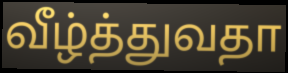
வீழ்த்துவதா